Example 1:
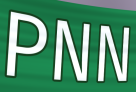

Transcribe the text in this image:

PNN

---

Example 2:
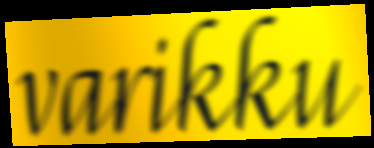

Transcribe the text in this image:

varikku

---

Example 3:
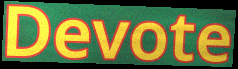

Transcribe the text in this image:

Devote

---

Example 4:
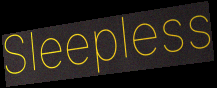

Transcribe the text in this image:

Sleepless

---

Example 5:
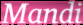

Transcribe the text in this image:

Mandi